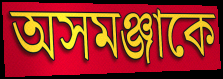
অসমঞ্জাকে